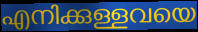
എനിക്കുള്ളവയെ